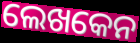
ଲେଖକେନ